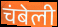
चंबेली